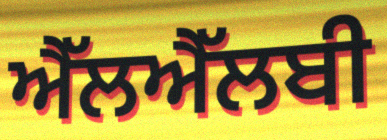
ਐੱਲਐੱਲਬੀ